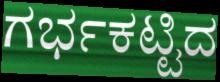
ಗರ್ಭಕಟ್ಟಿದ